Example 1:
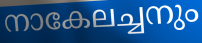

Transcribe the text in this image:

നാകേലച്ചനും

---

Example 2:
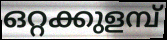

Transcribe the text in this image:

ഒറ്റക്കുളമ്പ്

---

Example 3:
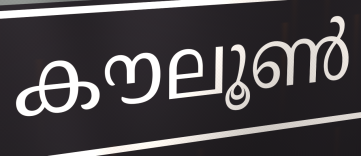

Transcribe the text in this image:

കൗലൂൺ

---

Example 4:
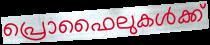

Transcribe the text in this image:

പ്രൊഫൈലുകൾക്ക്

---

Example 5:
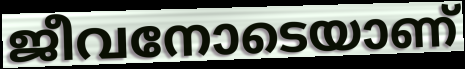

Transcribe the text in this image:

ജീവനോടെയാണ്